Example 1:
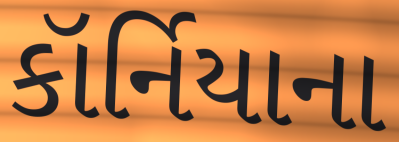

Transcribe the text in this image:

કૉર્નિયાના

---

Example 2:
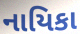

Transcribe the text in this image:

નાયિકા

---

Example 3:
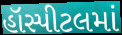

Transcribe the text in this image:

હૉસ્પીટલમાં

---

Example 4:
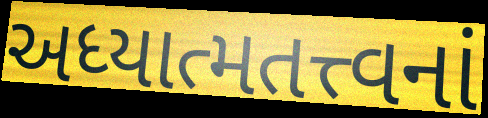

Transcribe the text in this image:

અધ્યાત્મતત્ત્વનાં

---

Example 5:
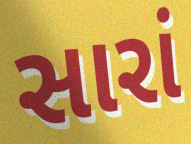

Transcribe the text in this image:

સારાં